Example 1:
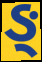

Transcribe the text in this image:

ઙ્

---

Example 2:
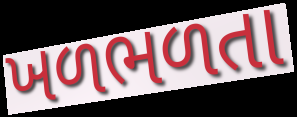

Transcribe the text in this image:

ખળભળતા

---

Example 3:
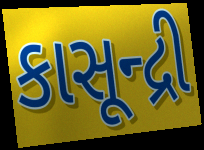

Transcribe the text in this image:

કાસૂન્દ્રી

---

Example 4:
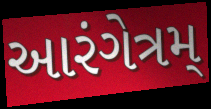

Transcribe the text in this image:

આરંગેત્રમ્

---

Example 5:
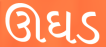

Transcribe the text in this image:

ઊઘડ